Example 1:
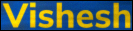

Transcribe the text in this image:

Vishesh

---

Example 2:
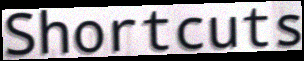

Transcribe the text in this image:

Shortcuts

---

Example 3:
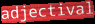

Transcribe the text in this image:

adjectival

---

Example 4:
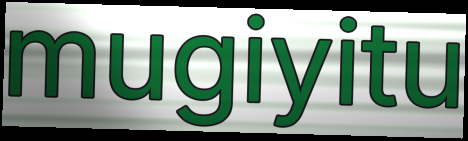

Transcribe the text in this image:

mugiyitu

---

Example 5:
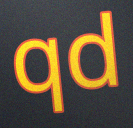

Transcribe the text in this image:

qd